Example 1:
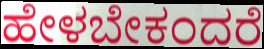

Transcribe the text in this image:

ಹೇಳಬೇಕಂದರೆ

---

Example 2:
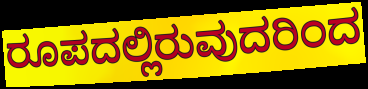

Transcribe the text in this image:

ರೂಪದಲ್ಲಿರುವುದರಿಂದ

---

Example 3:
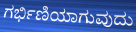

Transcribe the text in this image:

ಗರ್ಭಿಣಿಯಾಗುವುದು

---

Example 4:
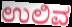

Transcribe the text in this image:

ಉಲಿವ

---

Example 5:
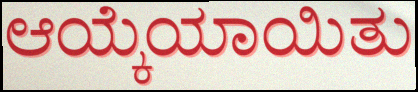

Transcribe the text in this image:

ಆಯ್ಕೆಯಾಯಿತು